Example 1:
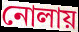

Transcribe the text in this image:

নোলায়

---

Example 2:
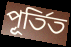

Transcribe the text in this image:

পূৰ্তিত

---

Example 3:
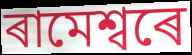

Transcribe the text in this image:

ৰামেশ্বৰে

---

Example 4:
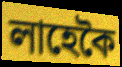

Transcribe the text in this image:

লাহেকৈ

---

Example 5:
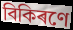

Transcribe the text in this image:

বিকিৰণে